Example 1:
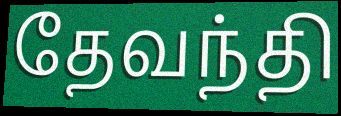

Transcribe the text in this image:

தேவந்தி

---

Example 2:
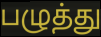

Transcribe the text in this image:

பழுத்து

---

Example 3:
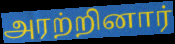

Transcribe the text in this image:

அரற்றினார்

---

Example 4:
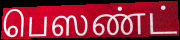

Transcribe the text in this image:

பெஸண்ட்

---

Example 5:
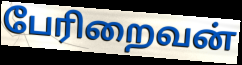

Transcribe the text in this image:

பேரிறைவன்